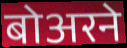
बोअरने